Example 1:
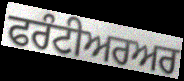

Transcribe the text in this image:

ਫਰੰਟੀਅਰਅਰ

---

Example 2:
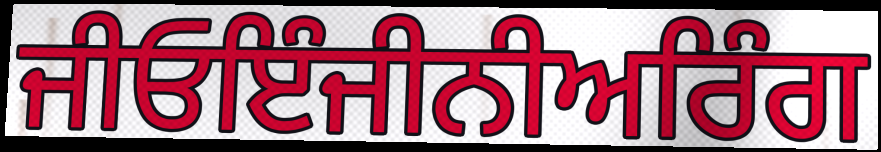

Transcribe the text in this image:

ਜੀਓਇੰਜੀਨੀਅਰਿੰਗ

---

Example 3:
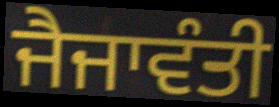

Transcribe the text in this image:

ਜੈਜਾਵੰਤੀ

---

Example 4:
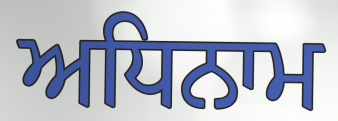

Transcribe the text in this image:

ਅਧਿਨਾਮ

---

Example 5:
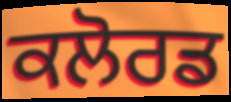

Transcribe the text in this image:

ਕਲੋਰਡ